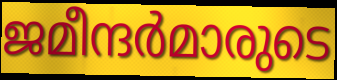
ജമീന്ദർമാരുടെ